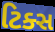
ટિક્સ